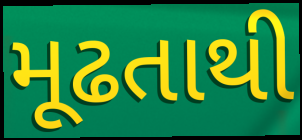
મૂઢતાથી